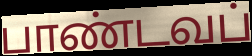
பாண்டவப்